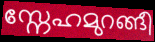
സ്നേഹമുറങ്ങീ